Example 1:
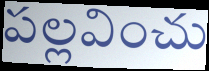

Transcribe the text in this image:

పల్లవించు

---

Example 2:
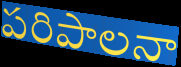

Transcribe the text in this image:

పరిపాలనా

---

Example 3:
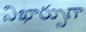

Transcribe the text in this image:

నిఖార్సుగా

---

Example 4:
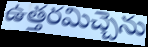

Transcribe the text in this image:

ఉత్తరమిచ్చెను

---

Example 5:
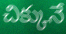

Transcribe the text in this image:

చిక్కునే